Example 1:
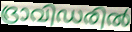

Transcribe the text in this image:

ദ്രാവിഡരിൽ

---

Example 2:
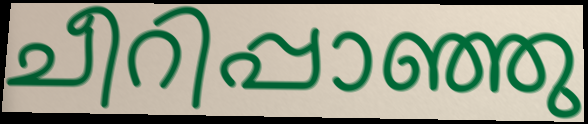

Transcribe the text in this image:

ചീറിപ്പാഞ്ഞു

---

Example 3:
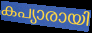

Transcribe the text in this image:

കപ്യാരായി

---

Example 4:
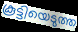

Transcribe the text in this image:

കൂട്ടിയെടുത്ത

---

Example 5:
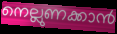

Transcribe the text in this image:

നെല്ലുണക്കാൻ